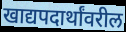
खाद्यपदार्थांवरील